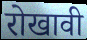
रोखावी